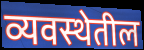
व्यवस्थेतील